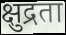
क्षुद्रता